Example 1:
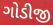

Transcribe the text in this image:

ગોડીજી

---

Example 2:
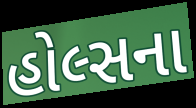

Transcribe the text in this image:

હોલ્સના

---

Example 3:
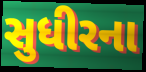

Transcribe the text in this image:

સુધીરના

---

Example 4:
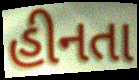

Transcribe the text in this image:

હીનતા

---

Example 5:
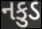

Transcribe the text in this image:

નકુડ